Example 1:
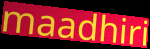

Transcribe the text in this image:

maadhiri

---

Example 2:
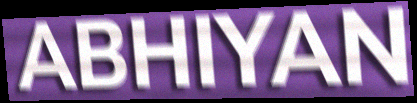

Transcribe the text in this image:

ABHIYAN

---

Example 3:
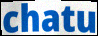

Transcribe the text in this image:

chatu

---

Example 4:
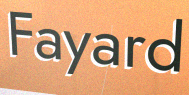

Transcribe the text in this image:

Fayard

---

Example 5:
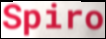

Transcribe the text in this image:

Spiro